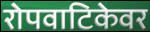
रोपवाटिकेवर